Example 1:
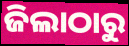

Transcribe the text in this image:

ଜିଲାଠାରୁ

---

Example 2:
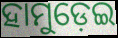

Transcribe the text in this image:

ହାମୁଡ଼େଇ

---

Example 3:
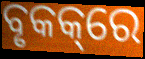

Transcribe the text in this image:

ବୃକକ୍‌ରେ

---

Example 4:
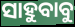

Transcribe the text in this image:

ସାହୁବାବୁ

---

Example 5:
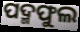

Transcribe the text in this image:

ପଦ୍ମଫୁଲ